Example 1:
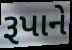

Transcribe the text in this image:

રૂપાને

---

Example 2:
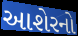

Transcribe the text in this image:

આશેરનો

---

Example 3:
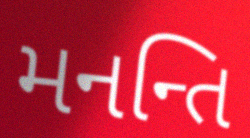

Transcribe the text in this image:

મનન્તિ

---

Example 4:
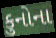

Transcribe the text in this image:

કુનોના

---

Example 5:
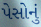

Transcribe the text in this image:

પેસોનું